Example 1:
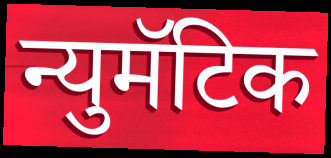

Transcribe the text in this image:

न्युमॅटिक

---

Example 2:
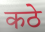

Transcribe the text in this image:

कठे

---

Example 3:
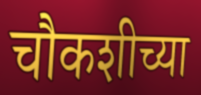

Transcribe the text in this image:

चौकशीच्या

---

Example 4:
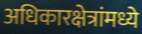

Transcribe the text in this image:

अधिकारक्षेत्रांमध्ये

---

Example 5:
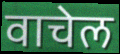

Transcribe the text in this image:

वाचेल